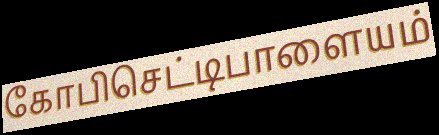
கோபிசெட்டிபாளையம்